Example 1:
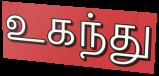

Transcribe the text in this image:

உகந்து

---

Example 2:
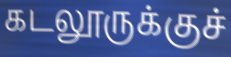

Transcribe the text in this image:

கடலூருக்குச்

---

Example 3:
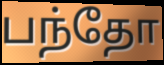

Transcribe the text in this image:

பந்தோ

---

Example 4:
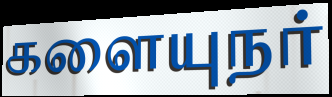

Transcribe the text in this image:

களையுநர்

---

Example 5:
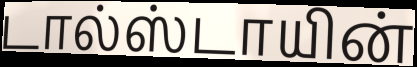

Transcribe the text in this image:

டால்ஸ்டாயின்